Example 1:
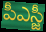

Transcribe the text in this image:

పీఎస్జీ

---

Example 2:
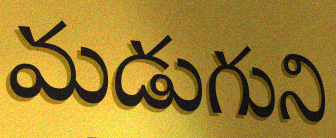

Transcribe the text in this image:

మడుగుని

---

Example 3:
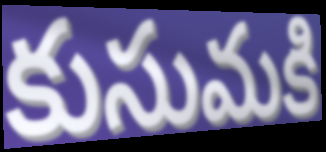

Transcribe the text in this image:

కుసుమకి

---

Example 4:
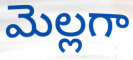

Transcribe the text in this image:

మెల్లగా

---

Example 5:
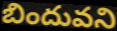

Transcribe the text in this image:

బిందువని